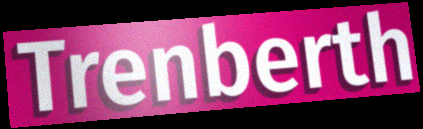
Trenberth